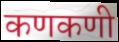
कणकणी